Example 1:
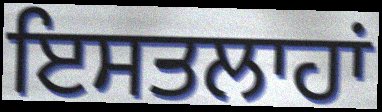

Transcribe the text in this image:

ਇਸਤਲਾਹਾਂ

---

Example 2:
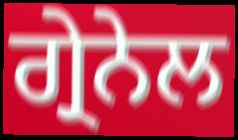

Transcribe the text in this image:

ਗ੍ਰੇਨੇਲ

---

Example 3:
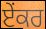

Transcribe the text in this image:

ਏੰਕਰ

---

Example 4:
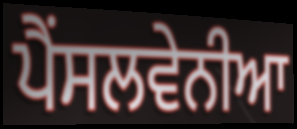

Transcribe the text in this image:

ਪੈਂਸਲਵੇਨੀਆ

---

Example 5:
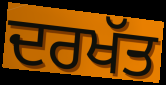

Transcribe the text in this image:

ਦਰਖੱਤ